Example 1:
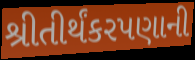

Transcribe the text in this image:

શ્રીતીર્થંકરપણાની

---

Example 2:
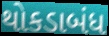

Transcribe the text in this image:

થોકડાબંધ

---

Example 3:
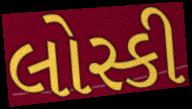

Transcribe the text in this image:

લોસ્કી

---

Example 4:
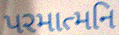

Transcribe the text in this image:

પરમાત્મનિ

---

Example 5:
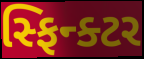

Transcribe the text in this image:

સ્ફિન્ક્ટર